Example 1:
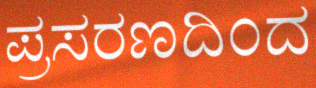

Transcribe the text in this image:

ಪ್ರಸರಣದಿಂದ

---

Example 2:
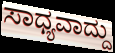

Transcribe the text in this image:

ಸಾಧ್ಯವಾದ್ದು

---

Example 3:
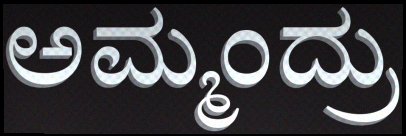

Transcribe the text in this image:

ಅಮ್ಮಂದ್ರು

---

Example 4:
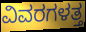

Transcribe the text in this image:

ವಿವರಗಳತ್ತ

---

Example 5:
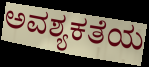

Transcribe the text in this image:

ಅವಶ್ಯಕತೆಯ